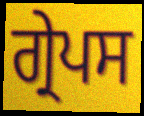
ਗ੍ਰੇਪਸ